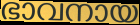
ഭാവനായ